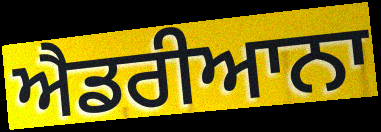
ਐਡਰੀਆਨਾ